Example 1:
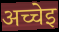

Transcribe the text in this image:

अच्चेइ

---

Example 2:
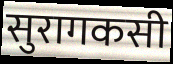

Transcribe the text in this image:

सुरागकसी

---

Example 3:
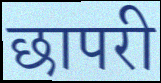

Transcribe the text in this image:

छापरी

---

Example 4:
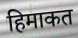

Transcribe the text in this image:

हिमाकत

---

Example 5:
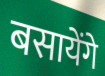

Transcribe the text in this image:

बसायेंगे